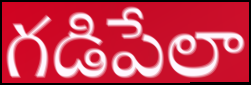
గడిపేలా